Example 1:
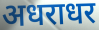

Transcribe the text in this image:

अधराधर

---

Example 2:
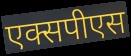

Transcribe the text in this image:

एक्सपीएस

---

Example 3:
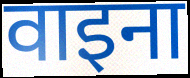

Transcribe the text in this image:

वाइना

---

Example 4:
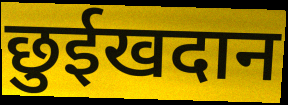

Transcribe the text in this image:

छुईखदान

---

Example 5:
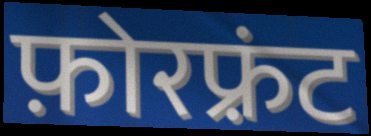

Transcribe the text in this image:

फ़ोरफ़्रंट